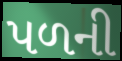
પળની